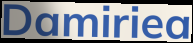
Damiriea